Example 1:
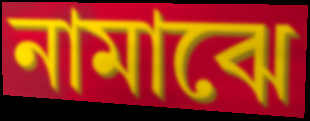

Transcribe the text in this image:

নামাঝে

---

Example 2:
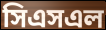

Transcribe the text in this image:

সিএসএল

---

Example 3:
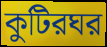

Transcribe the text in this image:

কুটিরঘর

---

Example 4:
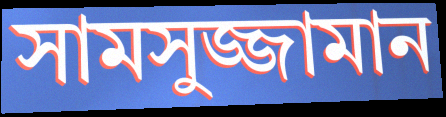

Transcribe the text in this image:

সামসুজ্জামান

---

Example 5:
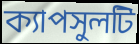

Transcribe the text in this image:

ক্যাপসুলটি